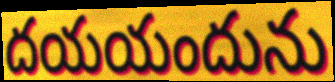
దయయందును